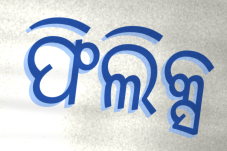
ଫିଲିକ୍ସ